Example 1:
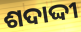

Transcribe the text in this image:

ଶଦାଦ୍ଦୀ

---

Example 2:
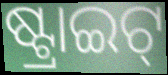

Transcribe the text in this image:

ଷ୍ଟ୍ରାଇଟ୍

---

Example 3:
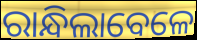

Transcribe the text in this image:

ରାନ୍ଧିଲାବେଳେ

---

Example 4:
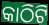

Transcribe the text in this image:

କାଠିଟି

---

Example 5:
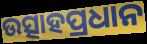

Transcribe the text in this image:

ଉତ୍ସାହପ୍ରଧାନ